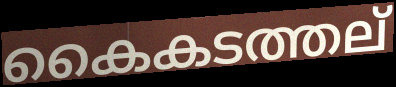
കൈകടത്തല്